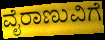
ವೈರಾಣುವಿಗೆ